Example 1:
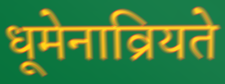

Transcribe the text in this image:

धूमेनाव्रियते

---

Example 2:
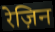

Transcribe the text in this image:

रेज़िन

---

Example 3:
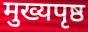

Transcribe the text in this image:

मुख्यपृष्ठ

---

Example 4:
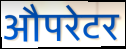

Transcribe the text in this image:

औपरेटर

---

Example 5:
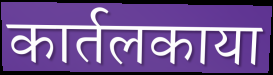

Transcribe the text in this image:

कार्तलकाया